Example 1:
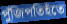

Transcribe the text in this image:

পুঁজিপতিহঁতে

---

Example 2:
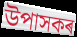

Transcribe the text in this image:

উপাসকৰ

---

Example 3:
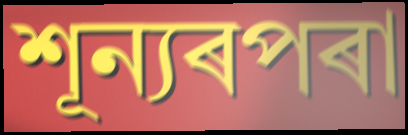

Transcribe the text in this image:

শূন্যৰপৰা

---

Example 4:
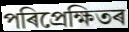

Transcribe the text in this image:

পৰিপ্ৰেক্ষিতৰ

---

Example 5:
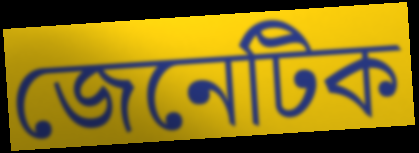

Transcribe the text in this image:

জেনেটিক